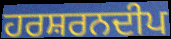
ਹਰਸ਼ਰਨਦੀਪ